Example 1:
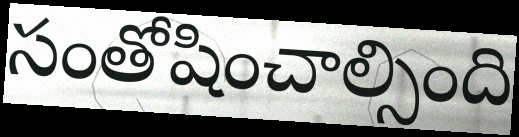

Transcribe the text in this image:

సంతోషించాల్సింది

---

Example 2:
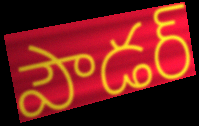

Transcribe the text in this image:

పౌడర్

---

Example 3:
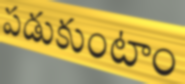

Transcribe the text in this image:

పడుకుంటాం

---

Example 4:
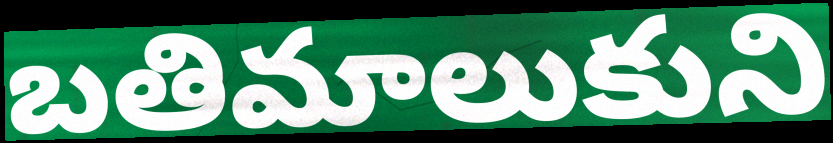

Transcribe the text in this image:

బతిమాలుకుని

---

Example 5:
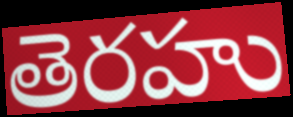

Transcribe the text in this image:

తెరహు